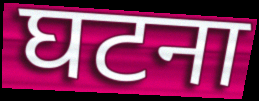
घटना